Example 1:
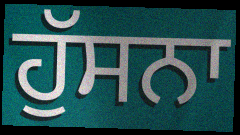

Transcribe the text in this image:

ਹੁੱਸਨਾ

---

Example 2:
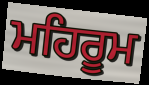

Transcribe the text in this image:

ਮਹਿਰੂਮ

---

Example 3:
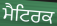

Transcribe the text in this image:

ਮੈਟਿਰਕ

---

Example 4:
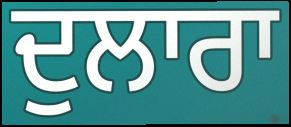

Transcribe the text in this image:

ਦੁਲਾਰਾ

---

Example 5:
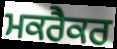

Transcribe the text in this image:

ਮਕਰੈਕਰ